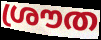
ശ്രൗത